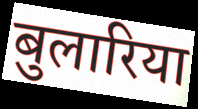
बुलारिया